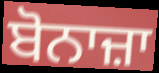
ਬੋਨਾਜ਼ਾ